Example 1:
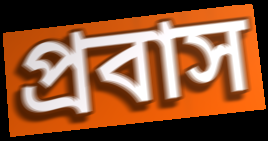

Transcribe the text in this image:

প্রবাস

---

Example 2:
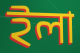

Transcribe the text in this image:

ইলা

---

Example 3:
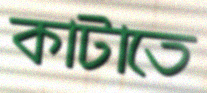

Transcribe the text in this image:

কাটাতে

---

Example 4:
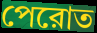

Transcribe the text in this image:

পেরোত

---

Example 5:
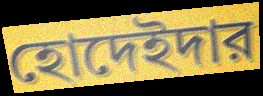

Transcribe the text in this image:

হোদেইদার